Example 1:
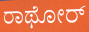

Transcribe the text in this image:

ರಾಥೋರ್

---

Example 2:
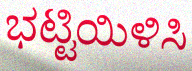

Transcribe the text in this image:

ಭಟ್ಟಿಯಿಳಿಸಿ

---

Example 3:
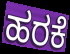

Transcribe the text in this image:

ಹರಕೆ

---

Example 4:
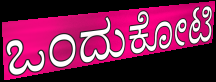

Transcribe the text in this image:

ಒಂದುಕೋಟಿ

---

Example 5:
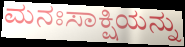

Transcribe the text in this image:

ಮನಃಸಾಕ್ಷಿಯನ್ನು